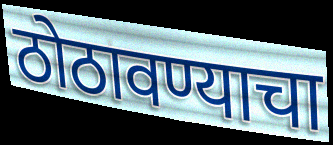
ठोठावण्याचा